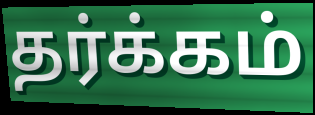
தர்க்கம்